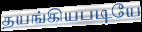
தயங்கியபடியே